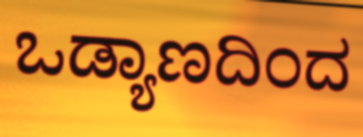
ಒಡ್ಯಾಣದಿಂದ